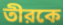
তীরকে